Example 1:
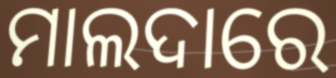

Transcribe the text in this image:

ମାଲଦାରେ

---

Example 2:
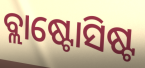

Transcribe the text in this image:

ବ୍ଲାଷ୍ଟୋସିଷ୍ଟ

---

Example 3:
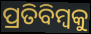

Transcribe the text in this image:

ପ୍ରତିବିମ୍ୱକୁ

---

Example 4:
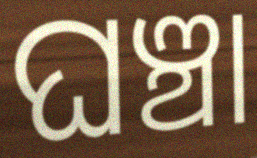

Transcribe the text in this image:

ଘଞ୍ଚା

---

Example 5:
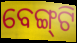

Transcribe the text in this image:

ବେଙ୍ଗ୍‌ଟି